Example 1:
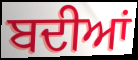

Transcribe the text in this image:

ਬਦੀਆਂ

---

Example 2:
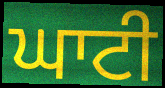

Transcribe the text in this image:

ਘਾਟੀ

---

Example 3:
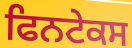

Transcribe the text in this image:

ਫਿਨਟੇਕਸ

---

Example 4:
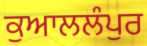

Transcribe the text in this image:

ਕੁਆਲਲੰਪੁਰ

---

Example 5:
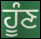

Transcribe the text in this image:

ਹੂੰਣ